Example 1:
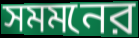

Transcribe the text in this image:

সমমনের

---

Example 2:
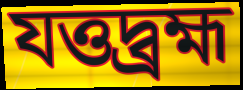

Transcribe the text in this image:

যত্তদ্ব্রহ্ম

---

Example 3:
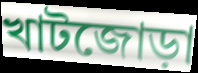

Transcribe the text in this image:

খাটজোড়া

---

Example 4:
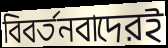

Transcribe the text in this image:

বিবর্তনবাদেরই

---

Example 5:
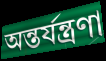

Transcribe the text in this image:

অন্তর্যন্ত্রণা